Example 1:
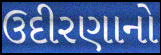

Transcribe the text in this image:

ઉદીરણાનો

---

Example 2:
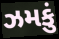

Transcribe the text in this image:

ઝમકું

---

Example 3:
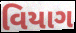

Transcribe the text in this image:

વિયાગ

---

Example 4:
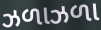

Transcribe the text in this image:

ઝળાઝળા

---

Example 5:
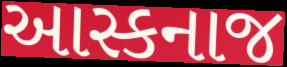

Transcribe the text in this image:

આસ્કનાજ